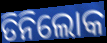
ତିନିଲୋକ